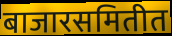
बाजारसमितीत